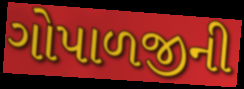
ગોપાળજીની